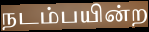
நடம்பயின்ற